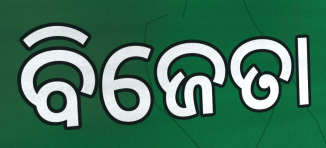
ବିଜେତା